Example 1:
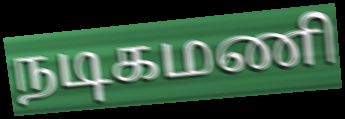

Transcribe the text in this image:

நடிகமணி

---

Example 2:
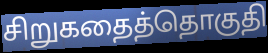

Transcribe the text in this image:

சிறுகதைத்தொகுதி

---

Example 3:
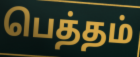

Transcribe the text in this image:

பெத்தம்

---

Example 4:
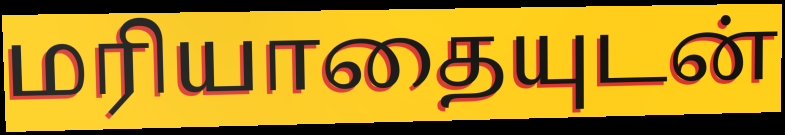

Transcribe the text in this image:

மரியாதையுடன்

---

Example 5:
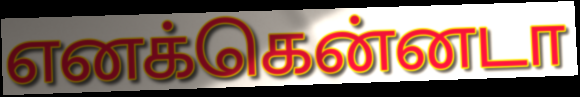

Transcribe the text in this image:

எனக்கென்னடா